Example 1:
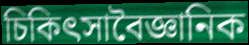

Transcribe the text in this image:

চিকিৎসাবৈজ্ঞানিক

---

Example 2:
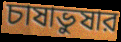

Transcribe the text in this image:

চাষাভুষার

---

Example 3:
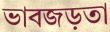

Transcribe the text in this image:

ভাবজড়তা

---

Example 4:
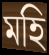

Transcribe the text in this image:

মহি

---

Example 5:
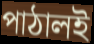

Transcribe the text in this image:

পাঠালই